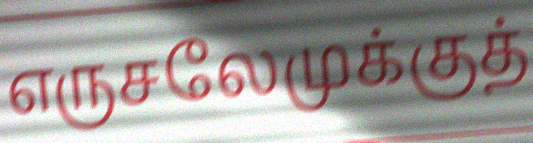
எருசலேமுக்குத்